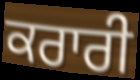
ਕਰਾਰੀ